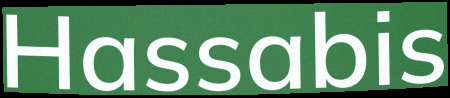
Hassabis